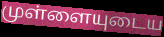
முள்ளையுடைய